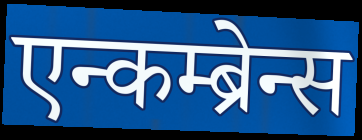
एन्कम्ब्रेन्स